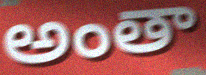
అంతా